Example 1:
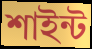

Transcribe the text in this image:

শাইন্ট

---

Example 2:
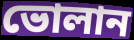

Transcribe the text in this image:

ভোলান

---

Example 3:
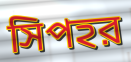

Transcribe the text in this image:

সিপহর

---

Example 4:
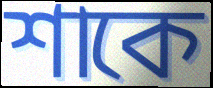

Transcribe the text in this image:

শাকে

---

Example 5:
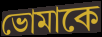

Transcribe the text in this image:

ভোমাকে